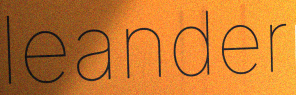
leander